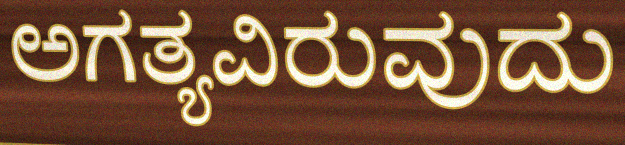
ಅಗತ್ಯವಿರುವುದು